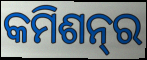
କମିଶନ୍‌ର